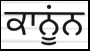
ਕਾਨੂਂਨ